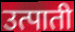
उत्पाती